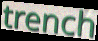
trench